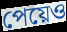
পেয়েও